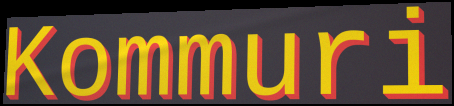
Kommuri